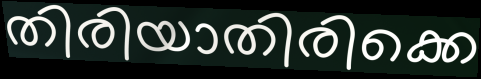
തിരിയാതിരിക്കെ